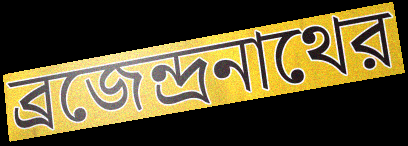
ব্রজেন্দ্রনাথের